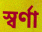
স্বর্ণা